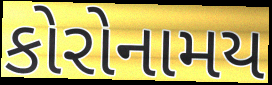
કોરોનામય